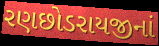
રણછોડરાયજીનાં